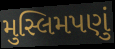
મુસ્લિમપણું